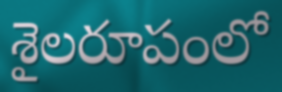
శైలరూపంలో